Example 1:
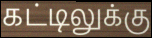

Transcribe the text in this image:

கட்டிலுக்கு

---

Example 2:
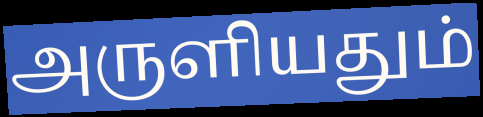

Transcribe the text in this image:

அருளியதும்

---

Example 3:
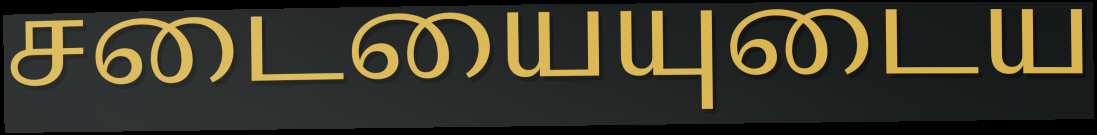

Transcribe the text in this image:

சடையையுடைய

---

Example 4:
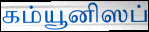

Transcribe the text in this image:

கம்யூனிஸப்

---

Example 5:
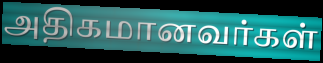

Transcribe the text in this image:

அதிகமானவர்கள்